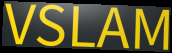
VSLAM